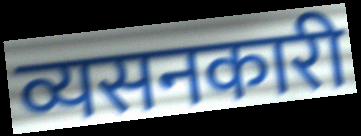
व्यसनकारी